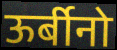
ऊर्बीनो